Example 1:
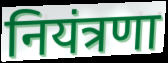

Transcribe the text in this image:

नियंत्रणा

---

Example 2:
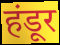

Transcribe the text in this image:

हंडूर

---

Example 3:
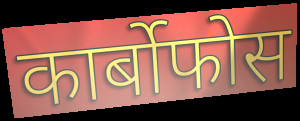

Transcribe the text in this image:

कार्बोफोस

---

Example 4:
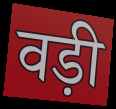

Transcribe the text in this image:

वड़ी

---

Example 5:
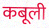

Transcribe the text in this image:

कबूली